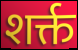
शर्क्त